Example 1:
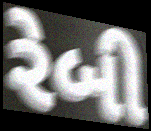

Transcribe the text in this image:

રેબી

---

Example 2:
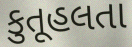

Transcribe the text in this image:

કુતૂહલતા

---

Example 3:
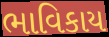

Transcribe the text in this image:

ભાવિકાય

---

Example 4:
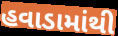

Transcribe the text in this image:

હવાડામાંથી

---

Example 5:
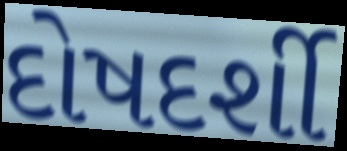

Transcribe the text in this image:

દોષદર્શી